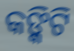
କଙ୍କିଟି